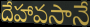
దేహావసానే